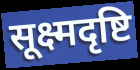
सूक्ष्मदृष्टि